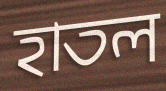
হাতল